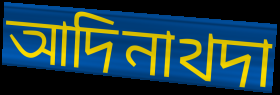
আদিনাথদা